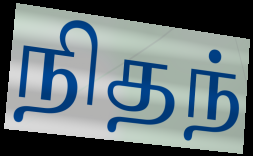
நிதந்